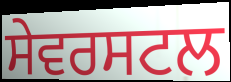
ਸੇਵਰਸਟਲ